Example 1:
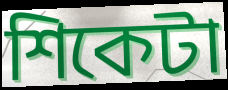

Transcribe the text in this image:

শিকেটা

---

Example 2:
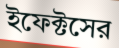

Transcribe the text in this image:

ইফেক্টসের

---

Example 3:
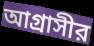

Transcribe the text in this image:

আগ্রাসীর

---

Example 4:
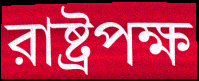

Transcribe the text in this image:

রাষ্ট্রপক্ষ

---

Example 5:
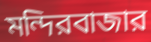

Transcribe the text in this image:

মন্দিরবাজার